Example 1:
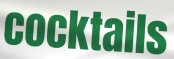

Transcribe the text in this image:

cocktails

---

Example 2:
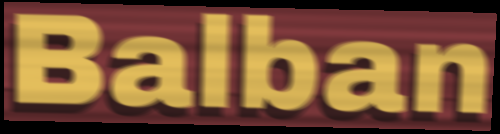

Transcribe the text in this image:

Balban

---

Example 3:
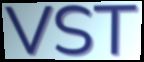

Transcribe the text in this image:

VST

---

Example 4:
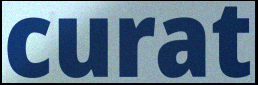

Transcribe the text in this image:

curat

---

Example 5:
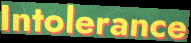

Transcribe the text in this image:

Intolerance